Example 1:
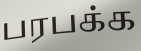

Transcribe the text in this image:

பரபக்க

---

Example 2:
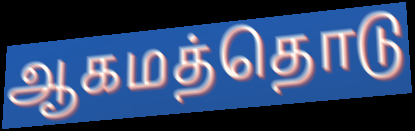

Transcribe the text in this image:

ஆகமத்தொடு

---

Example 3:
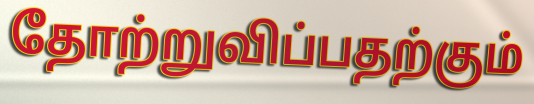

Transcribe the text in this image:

தோற்றுவிப்பதற்கும்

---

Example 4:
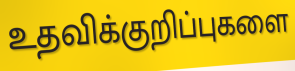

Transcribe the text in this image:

உதவிக்குறிப்புகளை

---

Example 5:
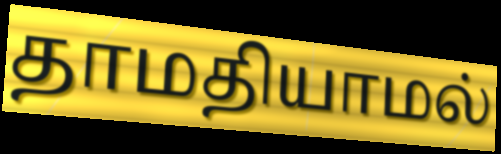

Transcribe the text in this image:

தாமதியாமல்